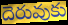
దెరువుకు